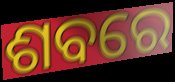
ଶବରେ